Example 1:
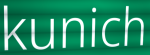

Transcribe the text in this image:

kunich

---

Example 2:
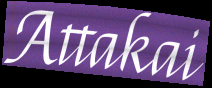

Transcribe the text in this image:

Attakai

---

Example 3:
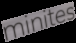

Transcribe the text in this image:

minites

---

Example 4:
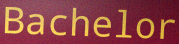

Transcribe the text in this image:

Bachelor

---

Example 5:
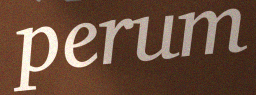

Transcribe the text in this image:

perum